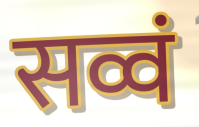
सव्वं